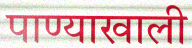
पाण्‍याखाली